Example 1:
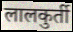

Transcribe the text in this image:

लालकुर्ती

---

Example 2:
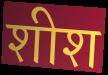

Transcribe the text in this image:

शीश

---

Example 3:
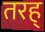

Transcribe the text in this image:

तरह्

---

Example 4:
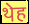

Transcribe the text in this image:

थेह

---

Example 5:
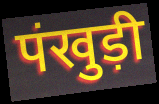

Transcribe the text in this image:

पंखुड़ी